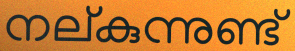
നല്കുന്നുണ്ട്